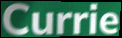
Currie